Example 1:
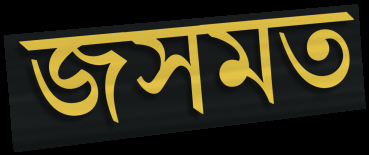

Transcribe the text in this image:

জসমত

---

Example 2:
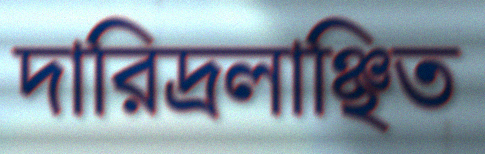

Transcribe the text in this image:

দারিদ্রলাঞ্ছিত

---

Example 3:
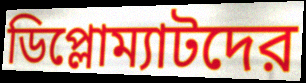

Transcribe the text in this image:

ডিপ্লোম্যাটদের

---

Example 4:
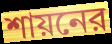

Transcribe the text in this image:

শায়নের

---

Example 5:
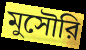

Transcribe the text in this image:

মুসৌরি